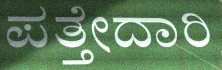
ಪತ್ತೇದಾರಿ